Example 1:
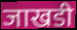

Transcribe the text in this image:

जाखडी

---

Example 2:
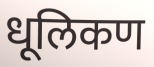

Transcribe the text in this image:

धूलिकण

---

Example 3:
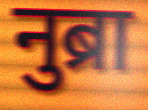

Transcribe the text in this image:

नुब्रा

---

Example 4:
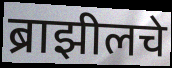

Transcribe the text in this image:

ब्राझीलचे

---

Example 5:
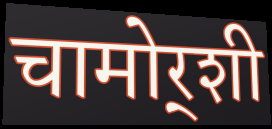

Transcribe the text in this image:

चामोर्शी